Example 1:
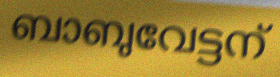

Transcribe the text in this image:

ബാബുവേട്ടന്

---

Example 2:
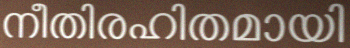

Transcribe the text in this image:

നീതിരഹിതമായി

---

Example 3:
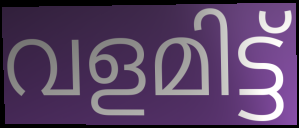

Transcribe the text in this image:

വളമിട്ട്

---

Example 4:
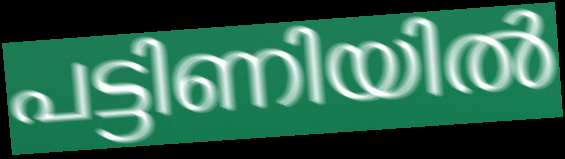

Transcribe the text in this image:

പട്ടിണിയിൽ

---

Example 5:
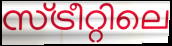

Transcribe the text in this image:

സ്ട്രീറ്റിലെ